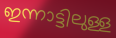
ഇന്നാട്ടിലുള്ള